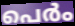
പെർം